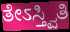
ತೇಽಸ್ತ್ವಿತಿ